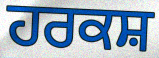
ਹਰਕਸ਼